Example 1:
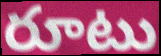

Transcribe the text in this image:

రూటు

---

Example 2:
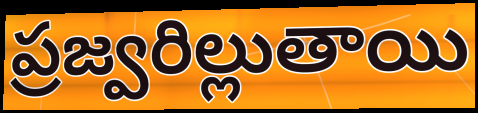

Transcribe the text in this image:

ప్రజ్వరిల్లుతాయి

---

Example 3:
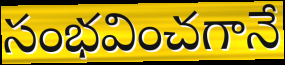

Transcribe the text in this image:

సంభవించగానే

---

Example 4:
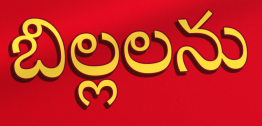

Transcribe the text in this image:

బిల్లలను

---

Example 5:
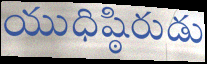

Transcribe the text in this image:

యుధిష్ఠిరుడు